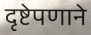
दृष्टेपणाने